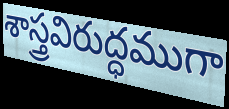
శాస్త్రవిరుద్ధముగా